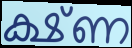
ക്ഷ്ണ